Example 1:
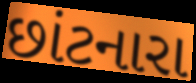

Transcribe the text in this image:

છાંટનારા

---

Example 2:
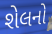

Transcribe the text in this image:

શેલનો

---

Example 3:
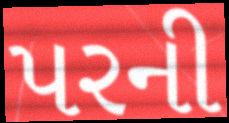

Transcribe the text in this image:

પરની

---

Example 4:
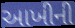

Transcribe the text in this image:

આખીની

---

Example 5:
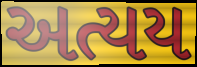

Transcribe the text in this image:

અત્યય